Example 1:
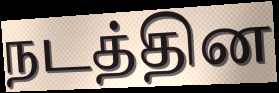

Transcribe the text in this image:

நடத்தின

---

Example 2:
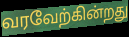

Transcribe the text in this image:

வரவேற்கின்றது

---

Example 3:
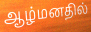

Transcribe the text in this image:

ஆழ்மனதில்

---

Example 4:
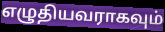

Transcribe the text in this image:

எழுதியவராகவும்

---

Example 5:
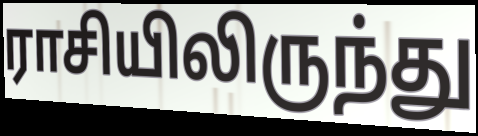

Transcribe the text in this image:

ராசியிலிருந்து